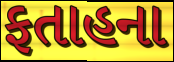
ફતાહના